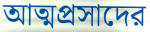
আত্মপ্রসাদের